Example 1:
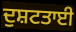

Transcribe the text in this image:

ਦੁਸ਼ਟਤਾਈ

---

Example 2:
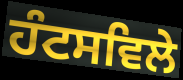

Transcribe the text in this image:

ਹੰਟਸਵਿਲੇ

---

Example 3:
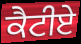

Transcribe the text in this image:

ਕੈਟੀਏ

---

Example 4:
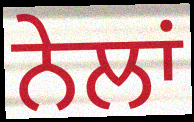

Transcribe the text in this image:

ਨੇਲਾਂ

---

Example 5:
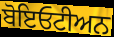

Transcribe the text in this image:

ਬੋਇਓਟੀਅਨ